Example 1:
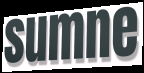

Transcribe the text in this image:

sumne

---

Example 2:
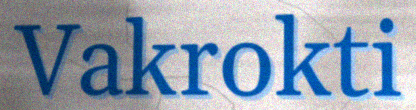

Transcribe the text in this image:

Vakrokti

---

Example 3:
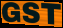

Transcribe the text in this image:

GST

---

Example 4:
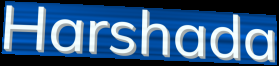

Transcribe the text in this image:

Harshada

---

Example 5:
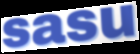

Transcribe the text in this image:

sasu